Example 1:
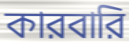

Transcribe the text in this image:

কারবারি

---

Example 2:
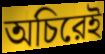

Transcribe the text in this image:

অচিরেই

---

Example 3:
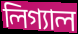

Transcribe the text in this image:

লিগ্যাল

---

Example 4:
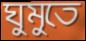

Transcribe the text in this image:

ঘুমুতে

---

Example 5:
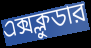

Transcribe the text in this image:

এক্সক্লুডার